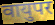
वायुपर